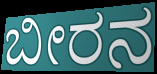
ಬೀರನ